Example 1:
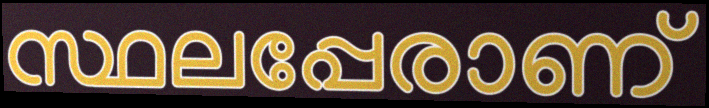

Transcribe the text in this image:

സ്ഥലപ്പേരാണ്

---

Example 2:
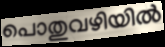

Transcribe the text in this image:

പൊതുവഴിയിൽ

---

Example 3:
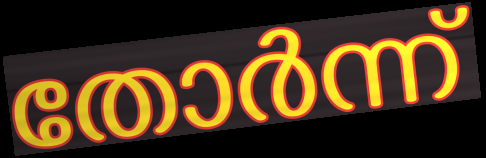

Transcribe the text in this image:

തോർന്ന്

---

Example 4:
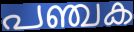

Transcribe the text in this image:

പഞ്ചക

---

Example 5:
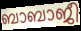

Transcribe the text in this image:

ബാബാജീ